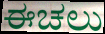
ಈಚಲು